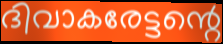
ദിവാകരേട്ടന്റെ